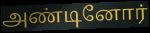
அண்டினோர்